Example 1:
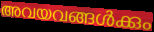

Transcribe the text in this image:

അവയവങ്ങൾക്കും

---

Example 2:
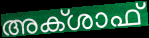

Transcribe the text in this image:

അക്ശാഫ്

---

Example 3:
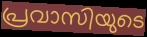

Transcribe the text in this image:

പ്രവാസിയുടെ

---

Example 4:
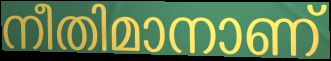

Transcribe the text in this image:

നീതിമാനാണ്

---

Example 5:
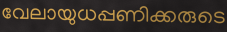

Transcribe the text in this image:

വേലായുധപ്പണിക്കരുടെ